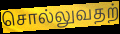
சொல்லுவதற்